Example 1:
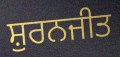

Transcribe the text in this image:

ਸ਼ੁਰਨਜੀਤ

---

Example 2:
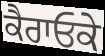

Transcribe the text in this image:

ਕੈਰਾਓਕੇ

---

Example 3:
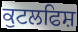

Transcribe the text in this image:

ਕੁਟਲਫਿਸ਼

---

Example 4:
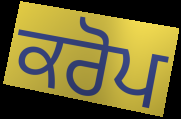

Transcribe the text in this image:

ਕਰੋਪ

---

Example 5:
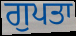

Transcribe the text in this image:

ਗੁਪਤਾ